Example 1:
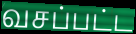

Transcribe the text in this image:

வசப்பட்ட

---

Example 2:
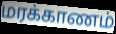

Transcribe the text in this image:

மரக்காணம்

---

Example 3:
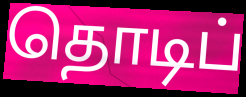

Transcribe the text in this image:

தொடிப்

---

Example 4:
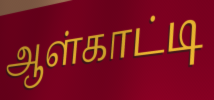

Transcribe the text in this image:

ஆள்காட்டி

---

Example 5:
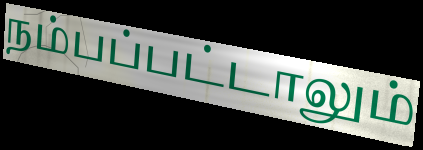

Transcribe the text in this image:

நம்பப்பட்டாலும்